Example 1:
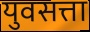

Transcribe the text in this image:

युवसत्ता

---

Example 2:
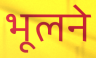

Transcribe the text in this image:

भूलने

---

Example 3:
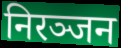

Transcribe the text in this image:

निरञ्जन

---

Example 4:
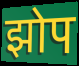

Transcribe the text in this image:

झोप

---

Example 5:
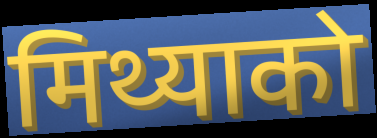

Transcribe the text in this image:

मिथ्याको